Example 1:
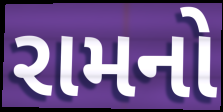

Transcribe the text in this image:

રામનો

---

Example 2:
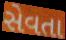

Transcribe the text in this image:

સેવતા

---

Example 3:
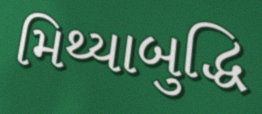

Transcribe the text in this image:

મિથ્યાબુદ્ધિ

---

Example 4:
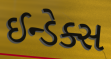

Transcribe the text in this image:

ઈન્ડેક્સ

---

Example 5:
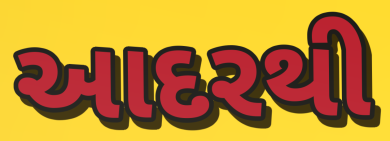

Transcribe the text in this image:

આદરથી